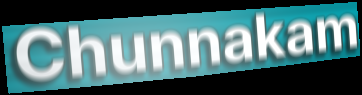
Chunnakam